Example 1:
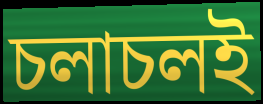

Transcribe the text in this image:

চলাচলই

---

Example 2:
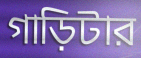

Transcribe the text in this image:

গাড়িটার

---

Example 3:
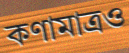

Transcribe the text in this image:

কণামাত্রও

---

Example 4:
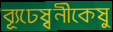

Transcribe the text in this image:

ব্যূঢেষ্বনীকেষু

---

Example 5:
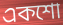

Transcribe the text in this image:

একশো